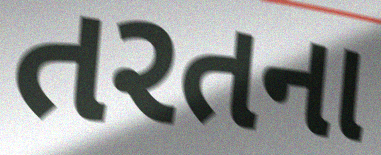
તરતના